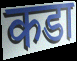
कडा